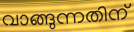
വാങ്ങുന്നതിന്